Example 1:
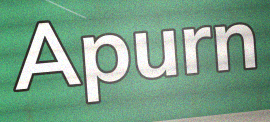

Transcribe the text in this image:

Apurn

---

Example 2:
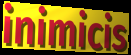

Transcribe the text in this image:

inimicis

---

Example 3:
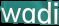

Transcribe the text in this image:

wadi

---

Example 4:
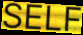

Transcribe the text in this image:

SELF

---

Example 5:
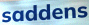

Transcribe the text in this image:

saddens